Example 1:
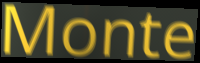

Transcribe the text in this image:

Monte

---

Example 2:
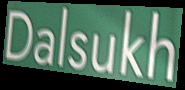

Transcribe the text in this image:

Dalsukh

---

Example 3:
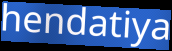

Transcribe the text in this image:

hendatiya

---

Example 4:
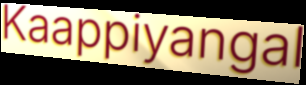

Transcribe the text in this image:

Kaappiyangal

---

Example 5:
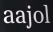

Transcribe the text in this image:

aajol